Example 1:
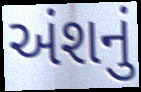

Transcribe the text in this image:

અંશનું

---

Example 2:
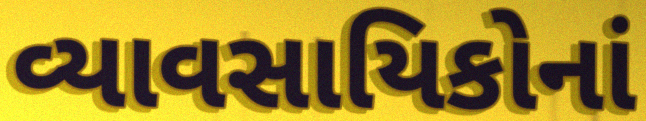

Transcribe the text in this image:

વ્યાવસાયિકોનાં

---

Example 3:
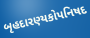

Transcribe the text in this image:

બૃહદારણ્યકોપનિષદ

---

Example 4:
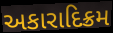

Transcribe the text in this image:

અકારાદિક્રમ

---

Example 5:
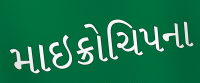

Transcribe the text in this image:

માઇક્રોચિપના